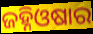
ଜହ୍ନିଓଷାର